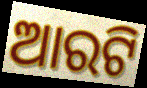
ଆରଟି